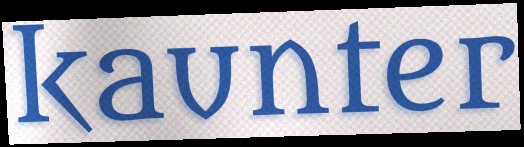
kaunter